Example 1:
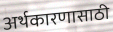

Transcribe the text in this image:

अर्थकारणासाठी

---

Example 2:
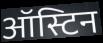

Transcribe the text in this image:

ऑस्टिन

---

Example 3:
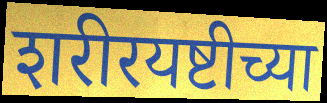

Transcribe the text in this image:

शरीरयष्टीच्या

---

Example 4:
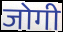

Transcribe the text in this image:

जोगी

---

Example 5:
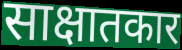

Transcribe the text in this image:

साक्षातकार